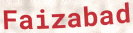
Faizabad